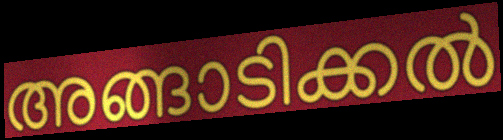
അങ്ങാടിക്കൽ